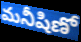
మనీషిణో